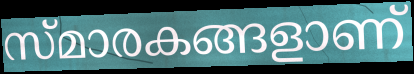
സ്മാരകങ്ങളാണ്